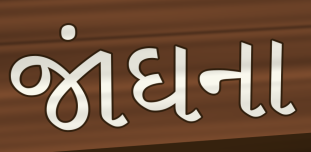
જાંઘના